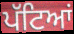
ਪੱਟਿਆਂ